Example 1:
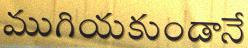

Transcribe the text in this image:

ముగియకుండానే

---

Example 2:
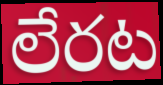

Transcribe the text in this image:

లేరట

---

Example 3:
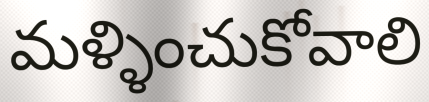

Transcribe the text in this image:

మళ్ళించుకోవాలి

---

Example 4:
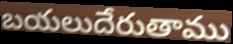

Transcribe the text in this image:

బయలుదేరుతాము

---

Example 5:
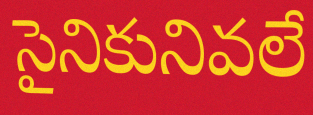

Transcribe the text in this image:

సైనికునివలే